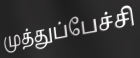
முத்துப்பேச்சி